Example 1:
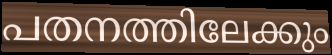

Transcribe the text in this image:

പതനത്തിലേക്കും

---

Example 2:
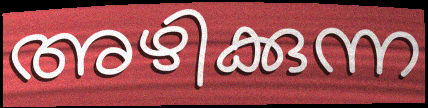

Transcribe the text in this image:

അഴിക്കുന്ന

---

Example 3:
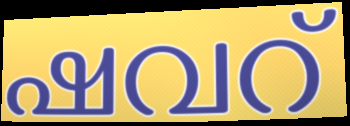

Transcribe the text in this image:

ഷവറ്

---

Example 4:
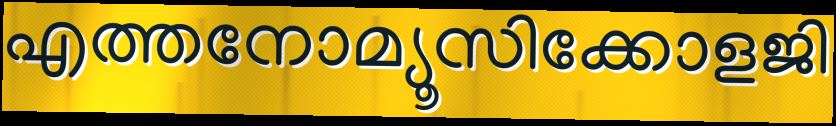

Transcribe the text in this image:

എത്തനോമ്യൂസിക്കോളജി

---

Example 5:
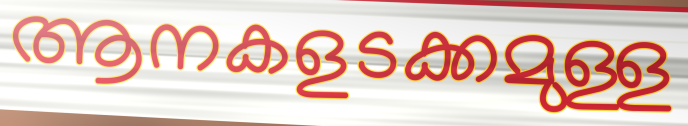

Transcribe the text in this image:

ആനകളടക്കമുള്ള